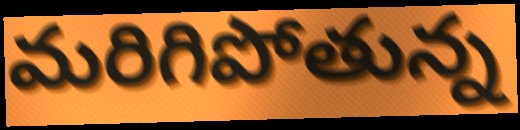
మరిగిపోతున్న